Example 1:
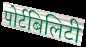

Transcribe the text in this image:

पोर्टबिलिटी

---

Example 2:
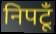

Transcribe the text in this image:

निपटूँ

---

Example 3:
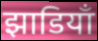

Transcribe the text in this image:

झाडियाँ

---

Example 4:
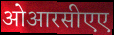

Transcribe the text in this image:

ओआरसीएए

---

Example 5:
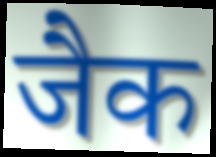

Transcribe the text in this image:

जैक